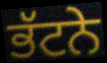
ਭੱਟਨੇ